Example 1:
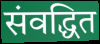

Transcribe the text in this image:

संवद्धित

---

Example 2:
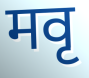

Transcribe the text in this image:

मवृ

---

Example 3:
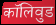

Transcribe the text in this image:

कॉलिवुड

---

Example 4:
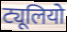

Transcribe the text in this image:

ट्यूलियो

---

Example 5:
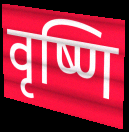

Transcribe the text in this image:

वृष्णि